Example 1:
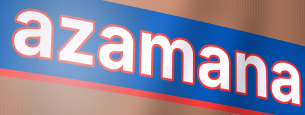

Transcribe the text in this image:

azamana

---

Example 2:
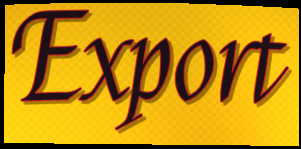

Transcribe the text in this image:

Export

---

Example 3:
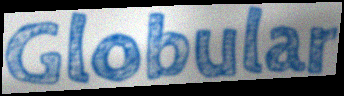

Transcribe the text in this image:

Globular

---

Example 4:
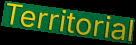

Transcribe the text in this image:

Territorial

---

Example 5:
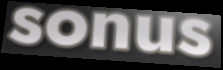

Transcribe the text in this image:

sonus